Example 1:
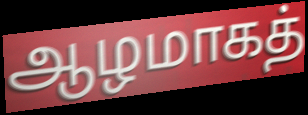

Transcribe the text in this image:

ஆழமாகத்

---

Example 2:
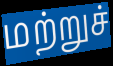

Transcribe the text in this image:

மற்றுச்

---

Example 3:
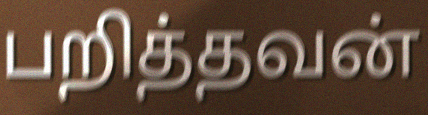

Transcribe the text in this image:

பறித்தவன்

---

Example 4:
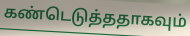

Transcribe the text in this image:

கண்டெடுத்ததாகவும்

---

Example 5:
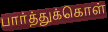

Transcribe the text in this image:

பார்த்துக்கொள்